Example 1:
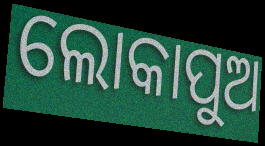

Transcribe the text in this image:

ଲୋକାପୁଅ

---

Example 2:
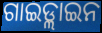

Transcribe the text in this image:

ଗାଇଡ୍ଲାଇନ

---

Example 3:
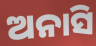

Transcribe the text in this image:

ଅନାସି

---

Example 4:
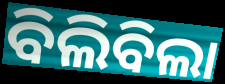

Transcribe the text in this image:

ବିଲିବିଲା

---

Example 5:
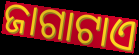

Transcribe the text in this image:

ଜାଗାଟାଏ